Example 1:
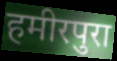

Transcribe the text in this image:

हमीरपुरा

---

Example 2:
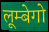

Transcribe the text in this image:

लूम्बेगो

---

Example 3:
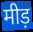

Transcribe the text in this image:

मीड़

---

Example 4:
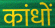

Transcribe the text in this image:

कांधों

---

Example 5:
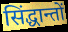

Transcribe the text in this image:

सिंद्धान्तों